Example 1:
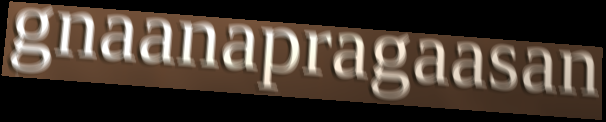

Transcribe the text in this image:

gnaanapragaasan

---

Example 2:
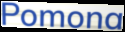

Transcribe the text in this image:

Pomona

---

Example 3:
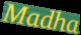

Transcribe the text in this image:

Madha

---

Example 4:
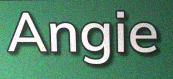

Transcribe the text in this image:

Angie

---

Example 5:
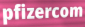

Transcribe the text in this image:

pfizercom